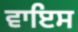
ਵਾਇਸ